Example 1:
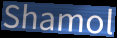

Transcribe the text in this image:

Shamol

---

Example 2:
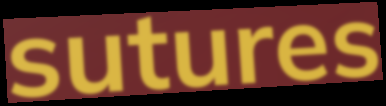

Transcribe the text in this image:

sutures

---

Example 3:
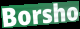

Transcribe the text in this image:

Borsho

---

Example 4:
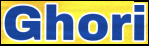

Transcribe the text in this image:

Ghori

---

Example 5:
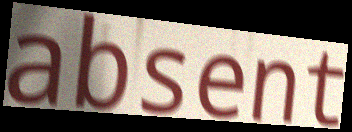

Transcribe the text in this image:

absent